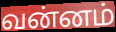
வன்னம்